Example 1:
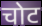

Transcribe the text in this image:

चोट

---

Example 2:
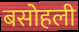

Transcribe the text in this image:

बसोहली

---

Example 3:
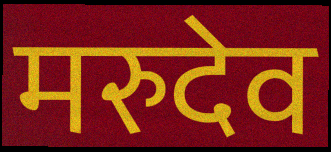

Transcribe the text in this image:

मरुदेव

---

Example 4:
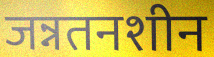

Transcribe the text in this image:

जन्नतनशीन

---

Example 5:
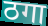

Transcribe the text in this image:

ठगा